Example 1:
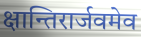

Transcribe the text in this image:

क्षान्तिरार्जवमेव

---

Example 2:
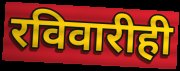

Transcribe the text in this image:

रविवारीही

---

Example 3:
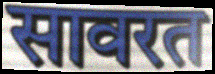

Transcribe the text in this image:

सावरत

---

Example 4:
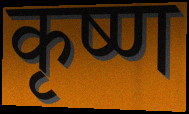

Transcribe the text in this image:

कृष्ण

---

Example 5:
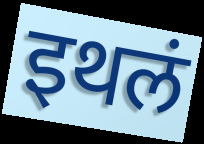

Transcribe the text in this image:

इथलं